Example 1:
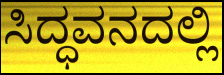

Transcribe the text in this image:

ಸಿದ್ಧವನದಲ್ಲಿ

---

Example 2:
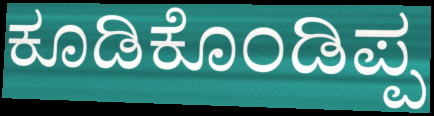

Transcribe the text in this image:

ಕೂಡಿಕೊಂಡಿಪ್ಪ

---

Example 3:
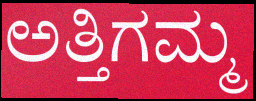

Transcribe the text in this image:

ಅತ್ತಿಗಮ್ಮ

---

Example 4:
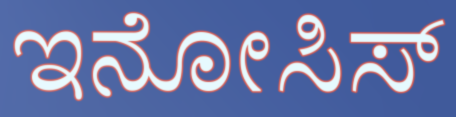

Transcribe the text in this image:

ಇನೋಸಿಸ್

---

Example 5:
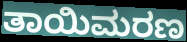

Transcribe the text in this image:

ತಾಯಿಮರಣ